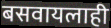
बसवायलाही